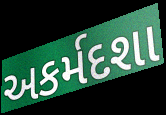
અકર્મદશા